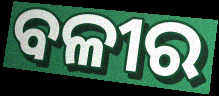
ବଳୀର